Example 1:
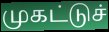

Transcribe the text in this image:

முகட்டுச்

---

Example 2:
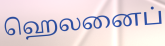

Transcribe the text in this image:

ஹெலனைப்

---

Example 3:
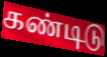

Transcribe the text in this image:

கண்டிடு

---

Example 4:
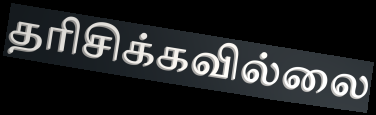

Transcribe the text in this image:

தரிசிக்கவில்லை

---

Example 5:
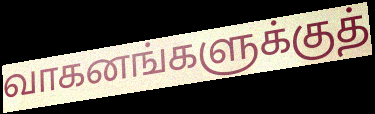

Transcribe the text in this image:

வாகனங்களுக்குத்